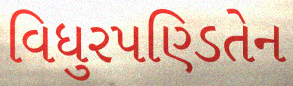
વિધુરપણ્ડિતેન